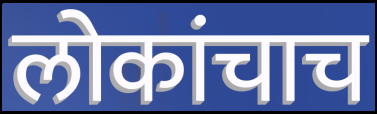
लोकांचाच